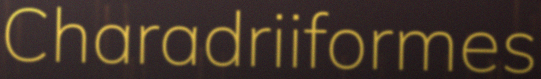
Charadriiformes